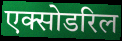
एक्सोडरिल